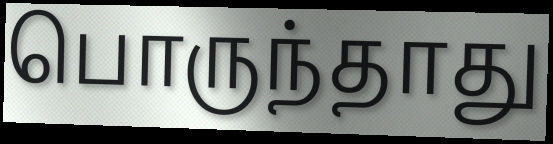
பொருந்தாது